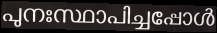
പുനഃസ്ഥാപിച്ചപ്പോൾ